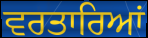
ਵਰਤਾਰਿਆਂ